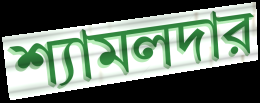
শ্যামলদার